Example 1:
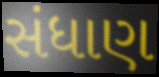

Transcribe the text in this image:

સંધાણ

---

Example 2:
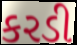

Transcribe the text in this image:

કરડી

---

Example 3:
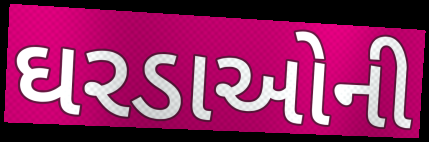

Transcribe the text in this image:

ઘરડાઓની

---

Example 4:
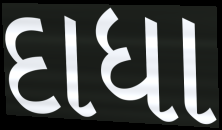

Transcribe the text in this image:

દાધા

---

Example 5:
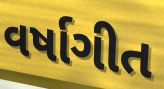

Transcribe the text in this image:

વર્ષાગીત